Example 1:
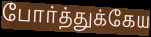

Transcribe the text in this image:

போர்த்துக்கேய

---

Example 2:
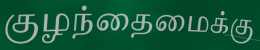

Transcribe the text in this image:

குழந்தைமைக்கு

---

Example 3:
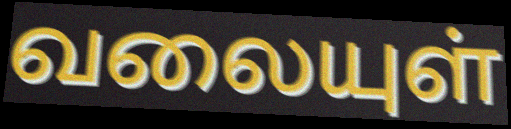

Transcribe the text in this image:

வலையுள்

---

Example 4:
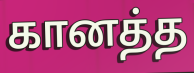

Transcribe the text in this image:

கானத்த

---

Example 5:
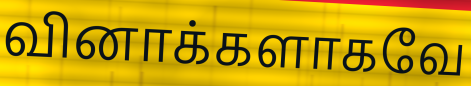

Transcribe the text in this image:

வினாக்களாகவே